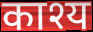
काश्य